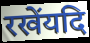
रखेंयदि